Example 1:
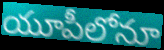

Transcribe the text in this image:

యూపీలోనూ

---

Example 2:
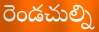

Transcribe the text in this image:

రెండచుల్ని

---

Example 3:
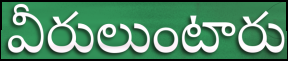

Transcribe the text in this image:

వీరులుంటారు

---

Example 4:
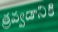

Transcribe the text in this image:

త్రవ్వడానికి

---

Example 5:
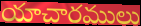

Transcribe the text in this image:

యాచారములు